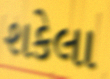
શકેલા